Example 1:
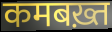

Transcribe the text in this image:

कमबख़्त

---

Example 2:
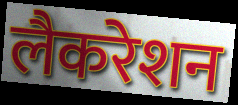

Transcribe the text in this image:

लैकरेशन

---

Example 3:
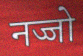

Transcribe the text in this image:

नज्जो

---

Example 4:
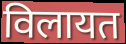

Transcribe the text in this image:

विलायत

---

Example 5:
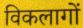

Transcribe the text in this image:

विकलागों